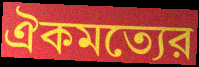
ঐকমত্যের